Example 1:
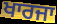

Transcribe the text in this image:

ਖਾਰਜਾ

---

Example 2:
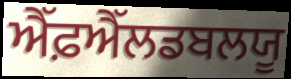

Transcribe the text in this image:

ਐੱਫ਼ਐੱਲਡਬਲਯੂ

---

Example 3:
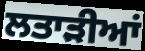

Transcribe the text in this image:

ਲਤਾੜੀਆਂ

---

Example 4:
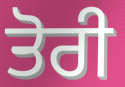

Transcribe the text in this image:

ਤੋਰੀ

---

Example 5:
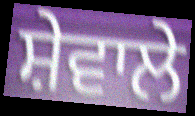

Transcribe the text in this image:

ਸ਼ੇਵਾਲੇ